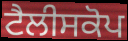
ਟੈਲੀਸਕੋਪ